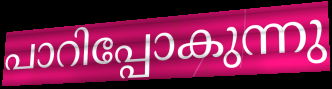
പാറിപ്പോകുന്നു